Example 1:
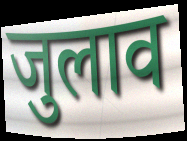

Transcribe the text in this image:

जुलाव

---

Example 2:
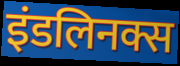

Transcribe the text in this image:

इंडलिनक्स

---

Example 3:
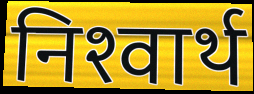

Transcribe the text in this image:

निश्वार्थ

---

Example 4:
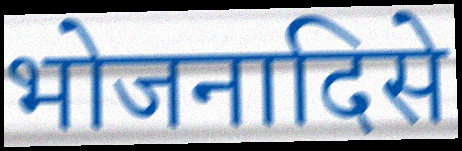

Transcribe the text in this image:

भोजनादिसे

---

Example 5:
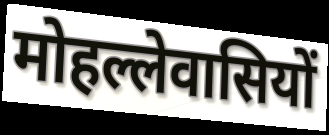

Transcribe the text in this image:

मोहल्लेवासियों